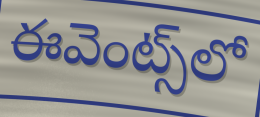
ఈవెంట్స్‌లో